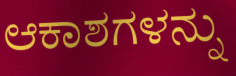
ಆಕಾಶಗಳನ್ನು